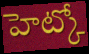
హెట్కో